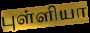
புள்ளியா